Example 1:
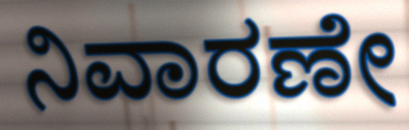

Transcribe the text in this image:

ನಿವಾರಣೇ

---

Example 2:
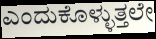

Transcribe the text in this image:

ಎಂದುಕೊಳ್ಳುತ್ತಲೇ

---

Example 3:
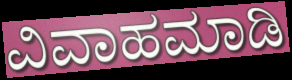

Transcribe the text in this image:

ವಿವಾಹಮಾಡಿ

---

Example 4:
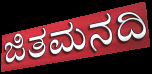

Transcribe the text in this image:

ಜಿತಮನದಿ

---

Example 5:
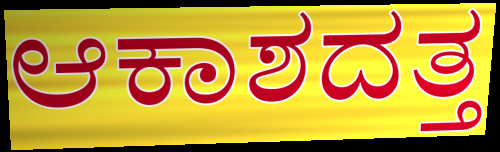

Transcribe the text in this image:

ಆಕಾಶದತ್ತ